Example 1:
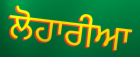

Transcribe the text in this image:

ਲੋਹਾਰੀਆ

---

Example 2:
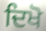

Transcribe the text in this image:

ਦਿਖੋ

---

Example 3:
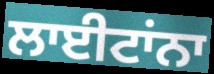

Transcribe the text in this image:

ਲਾਈਟਾਂਨਾ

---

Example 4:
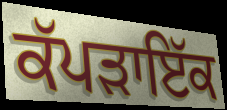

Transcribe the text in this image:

ਕੱਪੜਾਇੱਕ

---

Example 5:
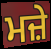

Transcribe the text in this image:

ਮਜ਼ੇ